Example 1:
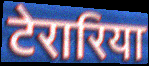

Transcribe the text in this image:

टेरारिया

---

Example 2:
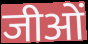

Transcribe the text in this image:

जीओं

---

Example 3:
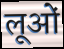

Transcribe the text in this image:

लूओं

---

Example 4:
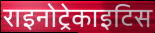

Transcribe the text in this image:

राइनोट्रेकाइटिस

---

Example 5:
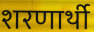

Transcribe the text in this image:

शरणार्थी